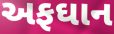
અફઘાન